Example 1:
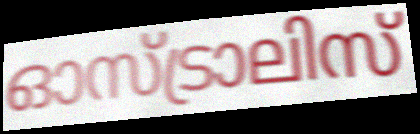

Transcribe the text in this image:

ഓസ്ട്രാലിസ്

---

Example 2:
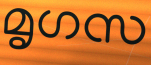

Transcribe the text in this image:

മൃഗസ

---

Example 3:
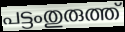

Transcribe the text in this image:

പട്ടംതുരുത്ത്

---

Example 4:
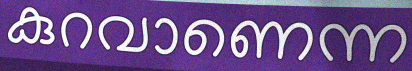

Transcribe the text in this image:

കുറവാണെന്ന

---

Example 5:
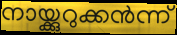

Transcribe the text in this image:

നായ്ക്കുറുക്കൻന്ന്